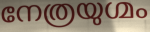
നേത്രയുഗ്മം